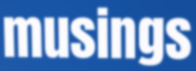
musings